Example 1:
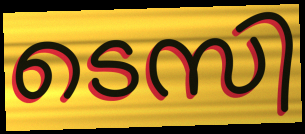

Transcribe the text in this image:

ടെസി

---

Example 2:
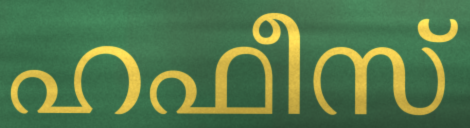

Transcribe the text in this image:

ഹഫീസ്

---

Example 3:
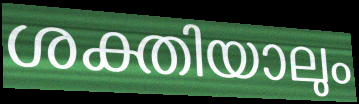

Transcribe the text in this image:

ശക്തിയാലും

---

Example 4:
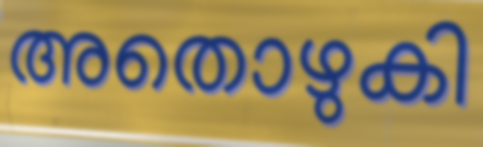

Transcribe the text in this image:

അതൊഴുകി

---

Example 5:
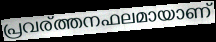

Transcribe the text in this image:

പ്രവര്ത്തനഫലമായാണ്